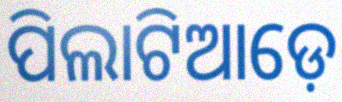
ପିଲାଟିଆଡ଼େ